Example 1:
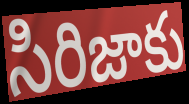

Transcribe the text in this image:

సిరిజాకు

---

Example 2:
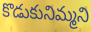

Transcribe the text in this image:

కొడుకునిమ్మని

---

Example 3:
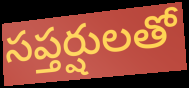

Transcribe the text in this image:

సప్తర్షులతో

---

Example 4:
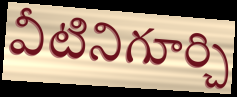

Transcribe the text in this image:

వీటినిగూర్చి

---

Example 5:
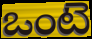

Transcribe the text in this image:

ఒంటె